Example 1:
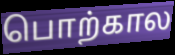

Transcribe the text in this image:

பொற்கால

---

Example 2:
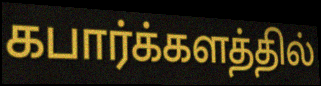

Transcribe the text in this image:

கபார்க்களத்தில்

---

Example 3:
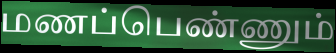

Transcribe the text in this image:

மணப்பெண்ணும்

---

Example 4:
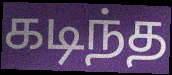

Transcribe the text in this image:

கடிந்த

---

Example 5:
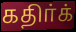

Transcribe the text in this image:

கதிர்க்